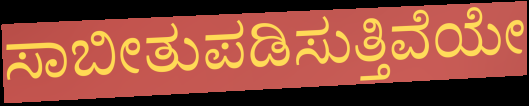
ಸಾಬೀತುಪಡಿಸುತ್ತಿವೆಯೇ